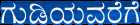
ಗುಡಿಯವರೆಗೆ